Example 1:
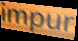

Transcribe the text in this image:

impur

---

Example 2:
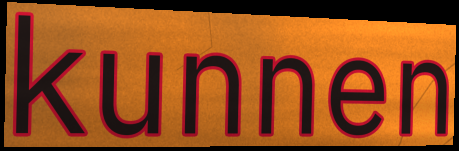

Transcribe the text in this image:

kunnen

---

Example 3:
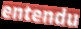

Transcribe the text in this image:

entendu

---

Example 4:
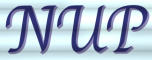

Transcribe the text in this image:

NUP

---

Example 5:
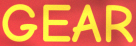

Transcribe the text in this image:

GEAR